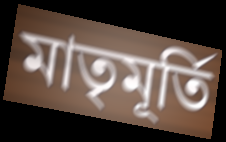
মাতৃমূর্তি